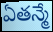
ఏతన్మే